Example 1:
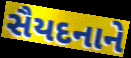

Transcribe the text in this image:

સૈયદનાને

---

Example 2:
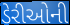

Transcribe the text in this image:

ડેરીઓની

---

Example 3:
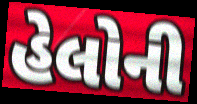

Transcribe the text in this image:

હેલોની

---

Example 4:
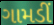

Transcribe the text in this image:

ગામડીં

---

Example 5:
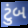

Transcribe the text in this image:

ટુંબ